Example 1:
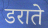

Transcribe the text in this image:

डराते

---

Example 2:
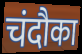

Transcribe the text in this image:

चंदौका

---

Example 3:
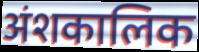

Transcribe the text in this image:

अंशकालिक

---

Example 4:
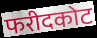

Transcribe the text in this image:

फरीदकोट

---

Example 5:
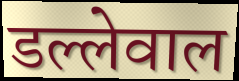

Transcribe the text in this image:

डल्लेवाल